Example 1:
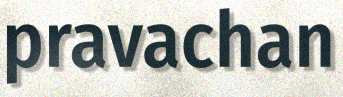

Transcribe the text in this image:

pravachan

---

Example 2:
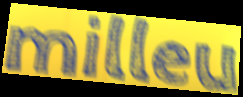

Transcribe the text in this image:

milleu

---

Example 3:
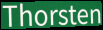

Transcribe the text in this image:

Thorsten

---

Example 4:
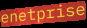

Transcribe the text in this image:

enetprise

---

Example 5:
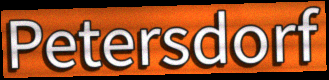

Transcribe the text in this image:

Petersdorf